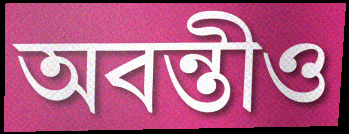
অবন্তীও